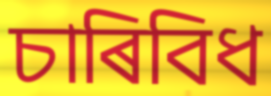
চাৰিবিধ